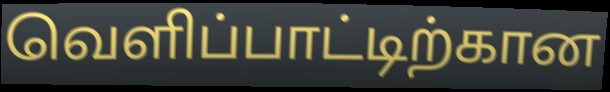
வெளிப்பாட்டிற்கான